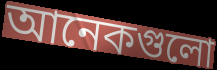
আনেকগুলো